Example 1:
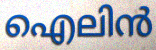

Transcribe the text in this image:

ഐലിൻ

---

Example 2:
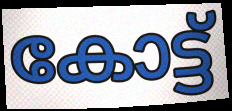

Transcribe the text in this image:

കോട്ട്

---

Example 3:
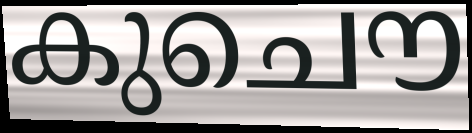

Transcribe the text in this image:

കുചൌ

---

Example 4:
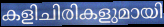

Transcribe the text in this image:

കളിചിരികളുമായി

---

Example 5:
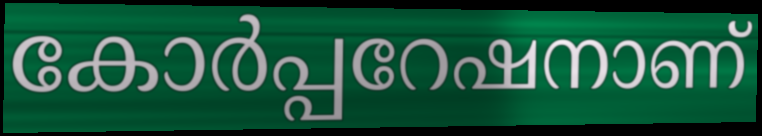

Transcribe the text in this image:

കോർപ്പറേഷനാണ്